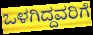
ಒಳಗಿದ್ದವರಿಗೆ